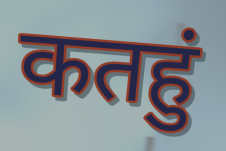
कतहुं